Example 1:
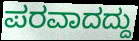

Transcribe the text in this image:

ಪರವಾದದ್ದು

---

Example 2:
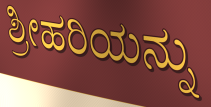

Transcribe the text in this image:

ಶ್ರೀಹರಿಯನ್ನು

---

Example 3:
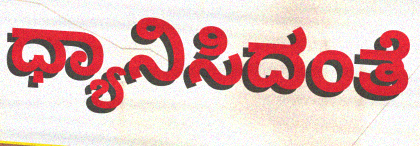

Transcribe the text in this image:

ಧ್ಯಾನಿಸಿದಂತೆ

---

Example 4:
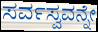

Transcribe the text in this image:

ಸರ್ವಸ್ವವನ್ನೇ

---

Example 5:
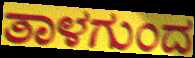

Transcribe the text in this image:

ತಾಳಗುಂದ